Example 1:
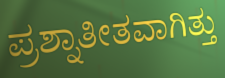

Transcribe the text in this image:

ಪ್ರಶ್ನಾತೀತವಾಗಿತ್ತು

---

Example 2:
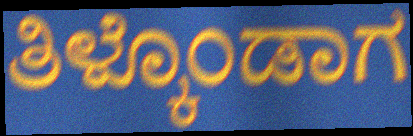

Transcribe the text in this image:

ತಿಳ್ಕೊಂಡಾಗ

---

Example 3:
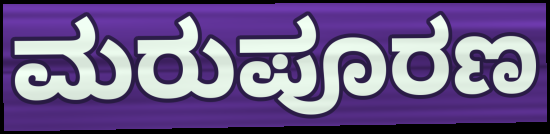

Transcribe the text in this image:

ಮರುಪೂರಣ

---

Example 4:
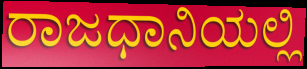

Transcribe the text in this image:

ರಾಜಧಾನಿಯಲ್ಲಿ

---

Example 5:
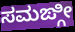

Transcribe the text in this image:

ಸಮಙ್ಗೀ